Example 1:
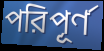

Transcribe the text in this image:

পরিপূর্ণ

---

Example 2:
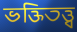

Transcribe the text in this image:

ভক্তিতত্ত্ব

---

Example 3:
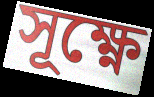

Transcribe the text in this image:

সূক্ষ্ণে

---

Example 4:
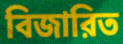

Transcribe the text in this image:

বিজারিত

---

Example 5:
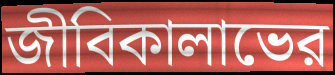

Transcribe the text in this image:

জীবিকালাভের